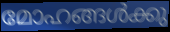
മോഹങ്ങൾക്കു